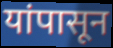
यांपासून